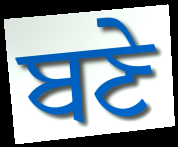
ਬਣੇ